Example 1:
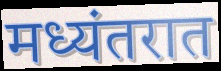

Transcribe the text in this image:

मध्यंतरात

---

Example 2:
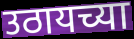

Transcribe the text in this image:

उठायच्या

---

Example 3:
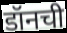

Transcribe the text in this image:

डॉनची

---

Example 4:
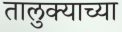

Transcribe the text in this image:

तालुक्याच्या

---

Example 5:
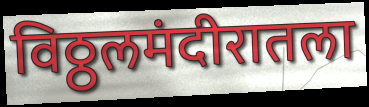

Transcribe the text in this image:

विठ्ठलमंदीरातला